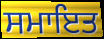
ਸਮਾਇਤ